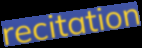
recitation